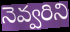
నెవ్వరిని